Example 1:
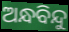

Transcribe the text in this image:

ଅନ୍ଧବିନ୍ଦୁ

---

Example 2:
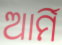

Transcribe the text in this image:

ଆର୍ମି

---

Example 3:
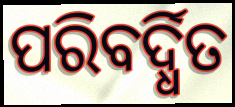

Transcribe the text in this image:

ପରିବର୍ଦ୍ଧିତ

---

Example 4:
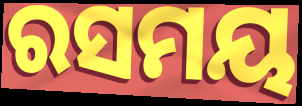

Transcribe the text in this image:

ରସମୟ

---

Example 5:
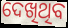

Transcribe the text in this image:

ଦେଖିଥିବ